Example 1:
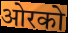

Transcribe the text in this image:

ओरको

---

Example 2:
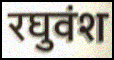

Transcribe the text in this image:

रघुवंश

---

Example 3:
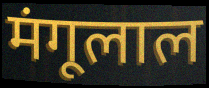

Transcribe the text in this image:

मंगूलाल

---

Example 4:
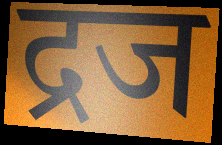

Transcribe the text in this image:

द्रज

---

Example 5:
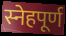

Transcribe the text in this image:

स्नेहपूर्ण